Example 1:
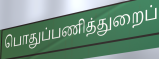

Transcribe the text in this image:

பொதுப்பணித்துறைப்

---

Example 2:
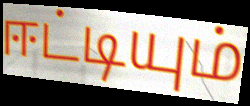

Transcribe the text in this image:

ஈட்டியும்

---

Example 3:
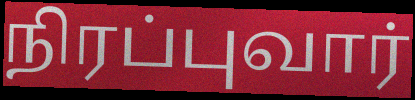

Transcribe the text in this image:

நிரப்புவார்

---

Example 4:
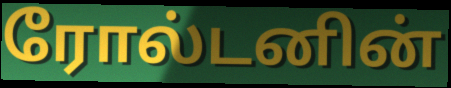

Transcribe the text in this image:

ரோல்டனின்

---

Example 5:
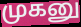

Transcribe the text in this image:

முகனு